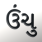
ઉંચુ